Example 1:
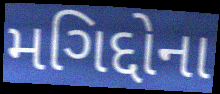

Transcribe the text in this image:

મગિદ્દોના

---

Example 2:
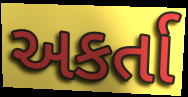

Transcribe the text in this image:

અકર્તા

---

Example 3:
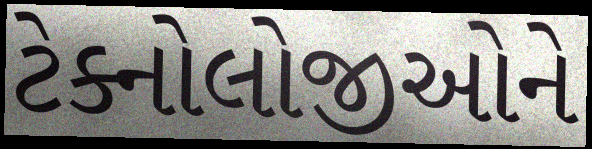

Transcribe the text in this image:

ટેક્નોલોજીઓને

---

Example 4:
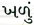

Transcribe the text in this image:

ખળું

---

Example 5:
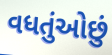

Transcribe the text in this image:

વધતુંઓછું